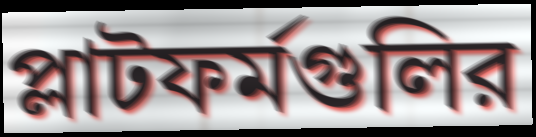
প্লাটফর্মগুলির